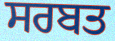
ਸਰਬਤ